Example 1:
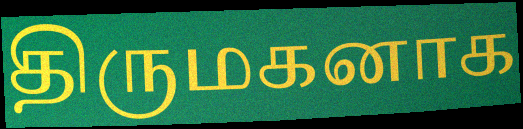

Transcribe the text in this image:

திருமகனாக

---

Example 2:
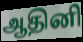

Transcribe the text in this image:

ஆதினி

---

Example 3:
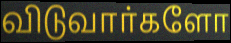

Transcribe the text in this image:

விடுவார்களோ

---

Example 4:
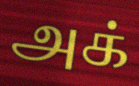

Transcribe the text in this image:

அக்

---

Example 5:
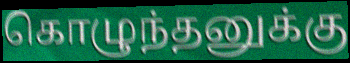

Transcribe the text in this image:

கொழுந்தனுக்கு